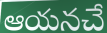
ఆయనచే